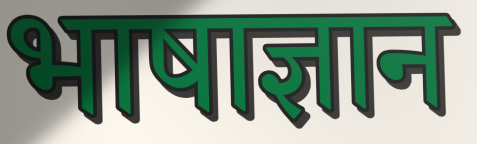
भाषाज्ञान